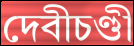
দেবীচণ্ডী